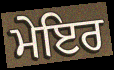
ਮੇਇਰ